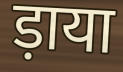
ड़ाया